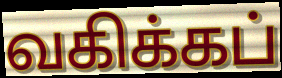
வகிக்கப்